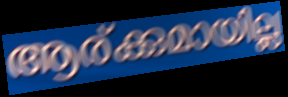
ആര്ക്കുമായില്ല